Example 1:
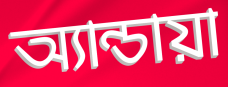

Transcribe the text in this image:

অ্যান্ডায়া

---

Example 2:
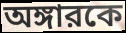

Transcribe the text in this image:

অঙ্গারকে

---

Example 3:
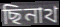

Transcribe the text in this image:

ছিনাথ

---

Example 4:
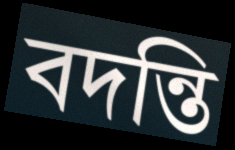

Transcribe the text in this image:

বদন্তি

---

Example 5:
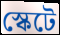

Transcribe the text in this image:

স্কেটে